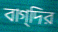
বাগ্‌দির